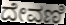
ದೇವಣಿ